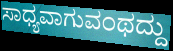
ಸಾಧ್ಯವಾಗುವಂಥದ್ದು